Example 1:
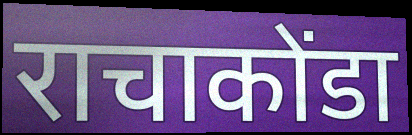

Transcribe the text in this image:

राचाकोंडा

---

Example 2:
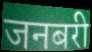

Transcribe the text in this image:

जनबरी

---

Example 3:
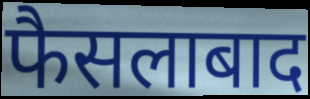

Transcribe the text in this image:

फैसलाबाद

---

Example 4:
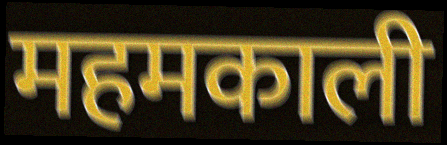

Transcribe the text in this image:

महमकाली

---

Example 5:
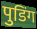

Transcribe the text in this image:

पुडिंग